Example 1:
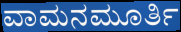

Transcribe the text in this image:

ವಾಮನಮೂರ್ತಿ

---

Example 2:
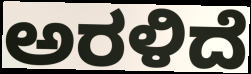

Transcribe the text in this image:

ಅರಳಿದೆ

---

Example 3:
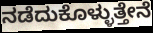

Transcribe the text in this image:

ನಡೆದುಕೊಳ್ಳುತ್ತೇನೆ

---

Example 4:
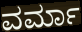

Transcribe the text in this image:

ವರ್ಮಾ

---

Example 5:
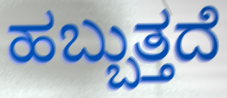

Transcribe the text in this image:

ಹಬ್ಬುತ್ತದೆ